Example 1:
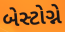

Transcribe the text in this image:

બેસ્ટોગ્ને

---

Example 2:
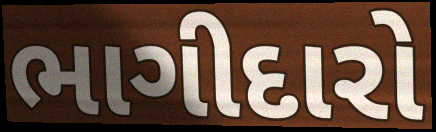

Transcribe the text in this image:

ભાગીદારો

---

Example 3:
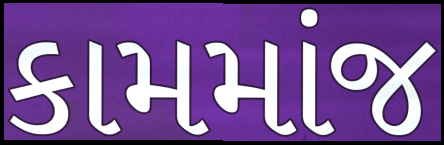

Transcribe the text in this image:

કામમાંજ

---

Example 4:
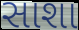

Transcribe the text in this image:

સાશા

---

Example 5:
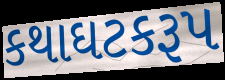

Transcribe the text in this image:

કથાઘટકરૂપ